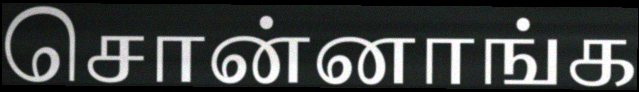
சொன்னாங்க